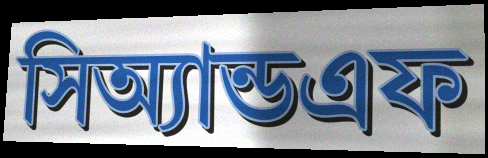
সিঅ্যান্ডএফ